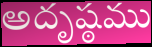
అదృష్ఠము